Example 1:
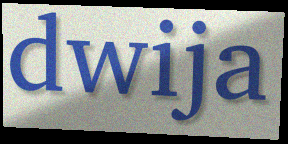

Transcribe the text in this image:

dwija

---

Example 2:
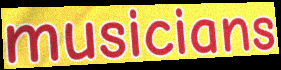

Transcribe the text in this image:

musicians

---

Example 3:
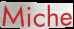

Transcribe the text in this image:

Miche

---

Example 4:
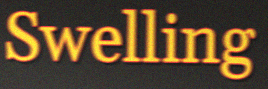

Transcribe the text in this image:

Swelling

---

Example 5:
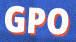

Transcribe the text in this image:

GPO